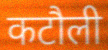
कटौली